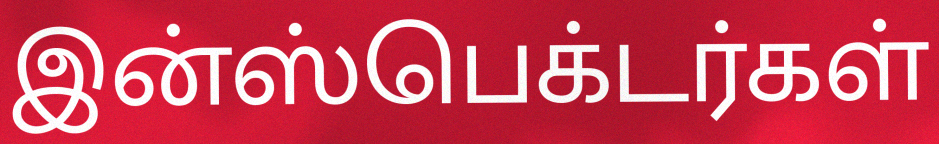
இன்ஸ்பெக்டர்கள்